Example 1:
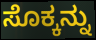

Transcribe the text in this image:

ಸೊಕ್ಕನ್ನು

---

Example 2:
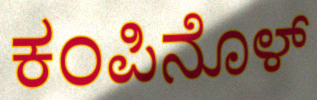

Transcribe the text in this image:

ಕಂಪಿನೊಳ್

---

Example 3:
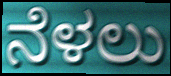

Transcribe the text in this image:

ನೆಳಲು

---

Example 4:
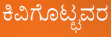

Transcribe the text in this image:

ಕಿವಿಗೊಟ್ಟವರ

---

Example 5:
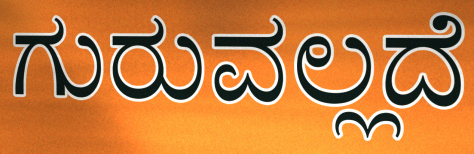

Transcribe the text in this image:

ಗುರುವಲ್ಲದೆ